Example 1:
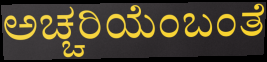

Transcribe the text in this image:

ಅಚ್ಚರಿಯೆಂಬಂತೆ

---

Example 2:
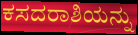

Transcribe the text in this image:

ಕಸದರಾಶಿಯನ್ನು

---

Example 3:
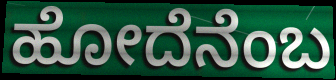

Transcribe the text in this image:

ಹೋದೆನೆಂಬ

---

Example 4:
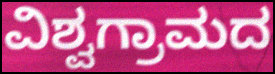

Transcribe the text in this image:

ವಿಶ್ವಗ್ರಾಮದ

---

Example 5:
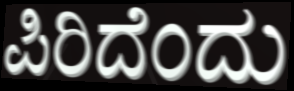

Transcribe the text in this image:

ಪಿರಿದೆಂದು